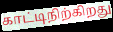
காட்டிநிற்கிறது